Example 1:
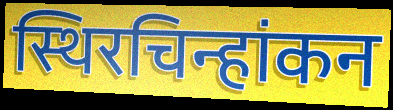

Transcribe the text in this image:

स्थिरचिन्हांकन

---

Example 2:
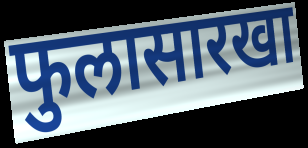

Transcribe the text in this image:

फुलासारखा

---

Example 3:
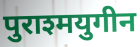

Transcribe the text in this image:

पुराश्मयुगीन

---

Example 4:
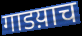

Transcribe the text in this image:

गाडय़ाच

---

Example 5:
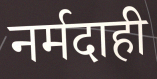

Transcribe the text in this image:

नर्मदाही